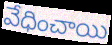
వేధించాయి